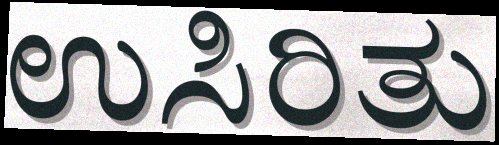
ಉಸಿರಿತು